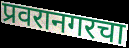
प्रवरानगरचा